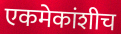
एकमेकांशीच